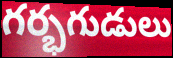
గర్భగుడులు